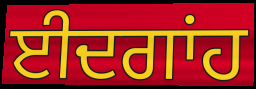
ਈਦਗਾਂਹ